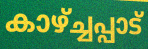
കാഴ്ച്ചപ്പാട്